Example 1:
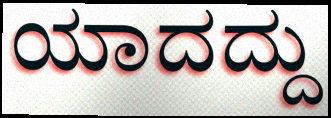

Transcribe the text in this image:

ಯಾದದ್ದು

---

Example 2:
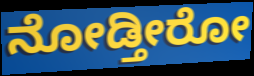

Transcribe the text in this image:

ನೋಡ್ತೀರೋ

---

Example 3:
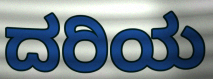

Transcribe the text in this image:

ದರಿಯ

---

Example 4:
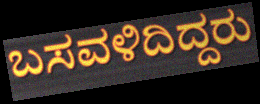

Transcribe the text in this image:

ಬಸವಳಿದಿದ್ದರು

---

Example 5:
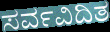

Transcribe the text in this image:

ಸರ್ವವಿದಿತ